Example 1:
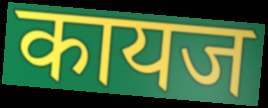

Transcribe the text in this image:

कायज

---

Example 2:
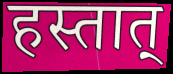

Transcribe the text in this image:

हस्तात्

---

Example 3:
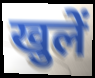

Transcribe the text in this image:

खुलें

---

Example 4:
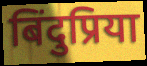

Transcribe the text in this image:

बिंदुप्रिया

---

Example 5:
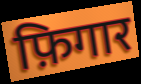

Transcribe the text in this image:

फ़िगार